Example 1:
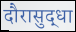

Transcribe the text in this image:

दौरासुद्धा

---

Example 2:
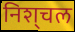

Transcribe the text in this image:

निश्चल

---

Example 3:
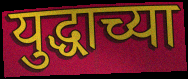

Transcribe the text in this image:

युद्धाच्या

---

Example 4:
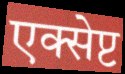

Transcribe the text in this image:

एक्सेप्ट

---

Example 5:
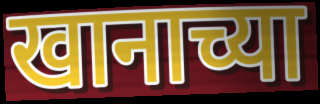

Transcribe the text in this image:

खानाच्या